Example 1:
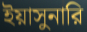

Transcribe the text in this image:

ইয়াসুনারি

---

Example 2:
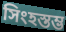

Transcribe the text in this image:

সিংহস্তম্ভ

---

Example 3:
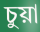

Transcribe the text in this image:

চুয়া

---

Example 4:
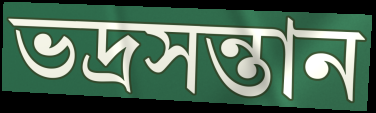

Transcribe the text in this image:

ভদ্রসন্তান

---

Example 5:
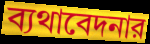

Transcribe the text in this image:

ব্যথাবেদনার